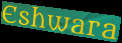
Eshwara